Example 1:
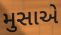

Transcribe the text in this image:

મુસાએ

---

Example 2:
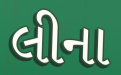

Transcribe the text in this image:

લીના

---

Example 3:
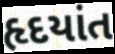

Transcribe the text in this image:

હૃદયાંત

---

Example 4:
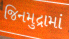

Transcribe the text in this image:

જિનમુદ્રામાં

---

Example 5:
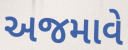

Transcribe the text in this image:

અજમાવે